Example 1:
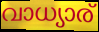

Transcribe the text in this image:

വാധ്യാര്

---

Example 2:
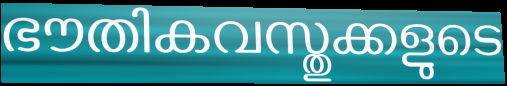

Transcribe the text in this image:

ഭൗതികവസ്തുക്കളുടെ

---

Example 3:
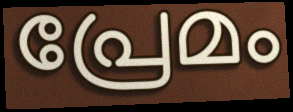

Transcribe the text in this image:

പ്രേമം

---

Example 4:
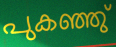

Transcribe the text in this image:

പുകഞ്ഞു്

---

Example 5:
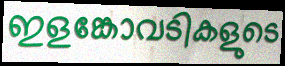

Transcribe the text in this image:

ഇളങ്കോവടികളുടെ